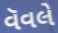
વૅવલે